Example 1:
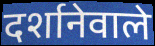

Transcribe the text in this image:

दर्शानेवाले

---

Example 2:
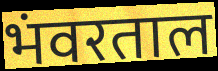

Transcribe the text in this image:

भंवरताल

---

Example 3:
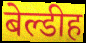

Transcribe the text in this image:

बेल्डीह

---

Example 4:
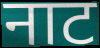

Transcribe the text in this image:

नाट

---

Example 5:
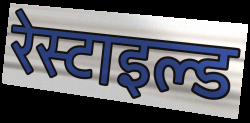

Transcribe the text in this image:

रेस्टाइल्ड